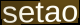
setao